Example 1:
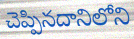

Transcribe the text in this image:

చెప్పినదానిలోని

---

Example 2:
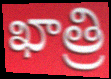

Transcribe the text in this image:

ఖాత్రి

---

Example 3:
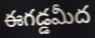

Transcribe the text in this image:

ఈగడ్డమీద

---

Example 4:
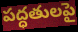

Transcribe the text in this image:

పద్ధతులపై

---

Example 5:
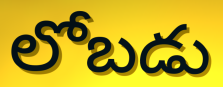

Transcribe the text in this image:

లోబడు